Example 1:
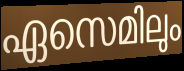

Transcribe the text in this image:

ഏസെമിലും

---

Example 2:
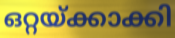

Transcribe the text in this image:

ഒറ്റയ്ക്കാക്കി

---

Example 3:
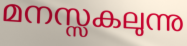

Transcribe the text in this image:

മനസ്സകലുന്നു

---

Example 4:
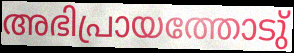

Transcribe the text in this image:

അഭിപ്രായത്തോടു്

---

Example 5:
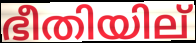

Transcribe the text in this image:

ഭീതിയില്